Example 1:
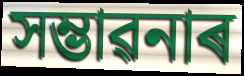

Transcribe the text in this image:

সম্ভাৱনাৰ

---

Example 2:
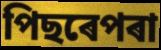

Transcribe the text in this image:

পিছৰেপৰা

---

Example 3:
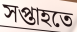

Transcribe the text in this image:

সপ্তাহতে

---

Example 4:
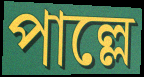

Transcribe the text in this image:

পাল্লে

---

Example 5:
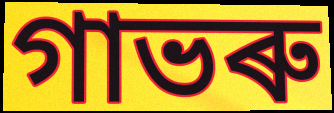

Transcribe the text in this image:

গাভৰু